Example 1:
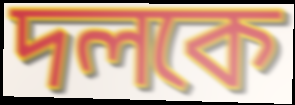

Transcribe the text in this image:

দলকে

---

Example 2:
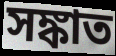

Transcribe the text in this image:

সঙ্কাত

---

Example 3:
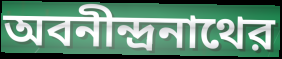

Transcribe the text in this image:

অবনীন্দ্রনাথের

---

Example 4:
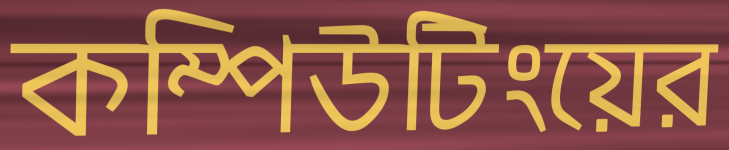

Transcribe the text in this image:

কম্পিউটিংয়ের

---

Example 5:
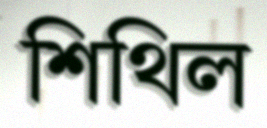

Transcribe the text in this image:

শিথিল